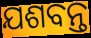
ଯଶବନ୍ତ